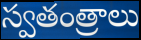
స్వతంత్రాలు